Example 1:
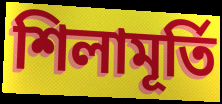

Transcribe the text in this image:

শিলামূর্তি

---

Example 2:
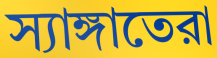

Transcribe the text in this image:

স্যাঙ্গাতেরা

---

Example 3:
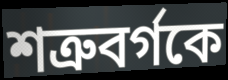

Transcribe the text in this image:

শত্রুবর্গকে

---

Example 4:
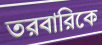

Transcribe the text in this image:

তরবারিকে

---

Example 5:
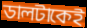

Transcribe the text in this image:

ডালটাকেই